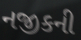
નજીકની